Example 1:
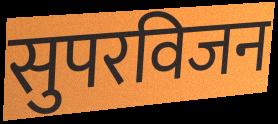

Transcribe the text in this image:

सुपरविजन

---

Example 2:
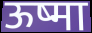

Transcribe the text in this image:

ऊष्मा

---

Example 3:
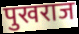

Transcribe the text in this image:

पुखराज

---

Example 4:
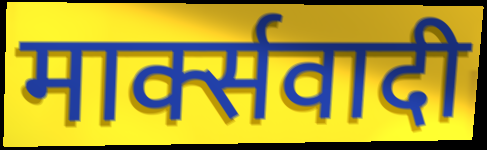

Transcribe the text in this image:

मार्क्सवादी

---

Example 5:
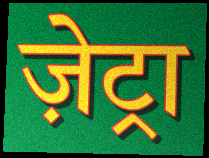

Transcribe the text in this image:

ज़ेट्रा